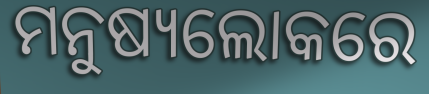
ମନୁଷ୍ୟଲୋକରେ